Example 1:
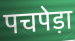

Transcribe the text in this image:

पचपेड़ा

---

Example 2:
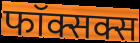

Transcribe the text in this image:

फॉक्सक्स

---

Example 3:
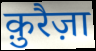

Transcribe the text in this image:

क़ुरैज़ा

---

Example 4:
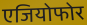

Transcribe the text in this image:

एजियोफोर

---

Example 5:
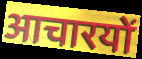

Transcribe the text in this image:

आचारयों